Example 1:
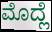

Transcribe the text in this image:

ಮೊದ್ಲೆ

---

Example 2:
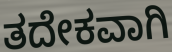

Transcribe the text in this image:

ತದೇಕವಾಗಿ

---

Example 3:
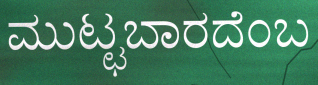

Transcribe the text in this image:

ಮುಟ್ಟಬಾರದೆಂಬ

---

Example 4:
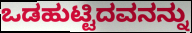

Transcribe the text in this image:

ಒಡಹುಟ್ಟಿದವನನ್ನು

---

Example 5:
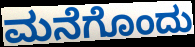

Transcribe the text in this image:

ಮನೆಗೊಂದು